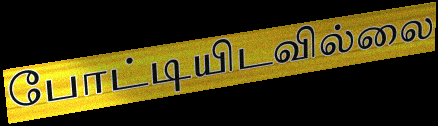
போட்டியிடவில்லை